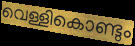
വെള്ളികൊണ്ടും